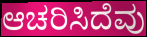
ಆಚರಿಸಿದೆವು